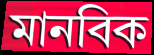
মানবিক